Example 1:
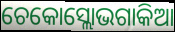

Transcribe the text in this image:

ଚେକୋସ୍ଲୋଭଗାକିଆ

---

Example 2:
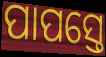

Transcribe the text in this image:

ପାପସ୍ତେ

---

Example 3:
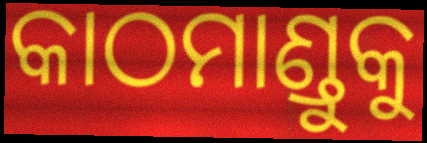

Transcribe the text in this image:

କାଠମାଣ୍ଡୁକୁ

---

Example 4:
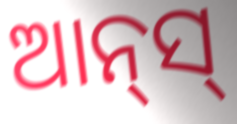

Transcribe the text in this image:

ଆନ୍‌ସ୍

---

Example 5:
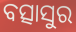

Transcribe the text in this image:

ବତ୍ସାସୁର